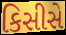
કિસીસે